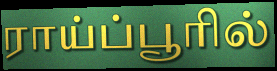
ராய்ப்பூரில்